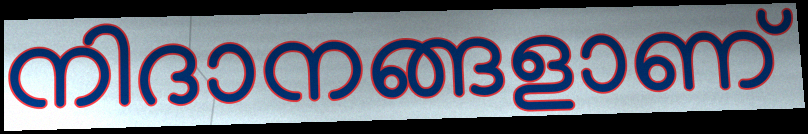
നിദാനങ്ങളാണ്